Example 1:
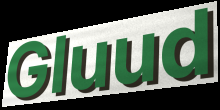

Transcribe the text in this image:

Gluud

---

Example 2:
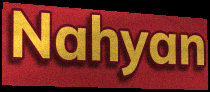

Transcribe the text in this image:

Nahyan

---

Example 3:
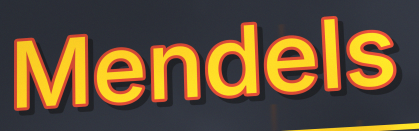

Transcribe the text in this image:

Mendels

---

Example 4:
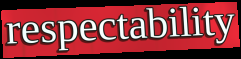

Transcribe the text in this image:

respectability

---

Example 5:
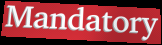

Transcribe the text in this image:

Mandatory